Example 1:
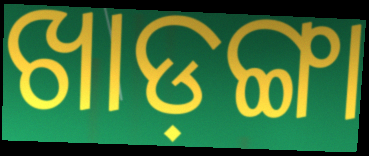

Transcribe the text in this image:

ଖାଡ଼ଙ୍ଗା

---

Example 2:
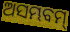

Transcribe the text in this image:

ଅସମ୍ଭବମ୍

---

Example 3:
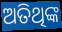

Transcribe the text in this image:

ଅତିଥିଙ୍କ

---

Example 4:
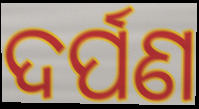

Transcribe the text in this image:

ଦର୍ପଣ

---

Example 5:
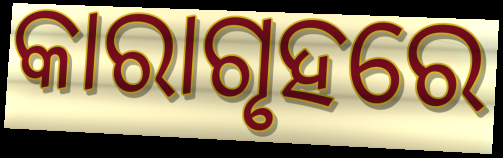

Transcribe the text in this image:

କାରାଗୃହରେ